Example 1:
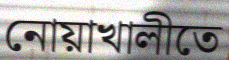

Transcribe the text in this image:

নোয়াখালীতে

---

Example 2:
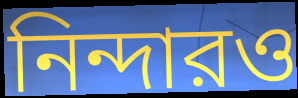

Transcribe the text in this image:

নিন্দারও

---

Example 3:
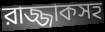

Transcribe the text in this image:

রাজ্জাকসহ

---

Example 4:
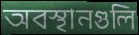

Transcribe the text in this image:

অবস্থানগুলি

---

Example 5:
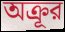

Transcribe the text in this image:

অক্রূর